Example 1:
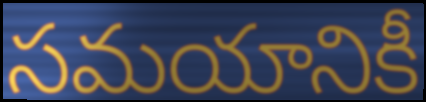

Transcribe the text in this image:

సమయానికీ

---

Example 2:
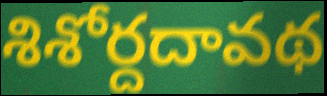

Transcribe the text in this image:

శిశోర్దదావథ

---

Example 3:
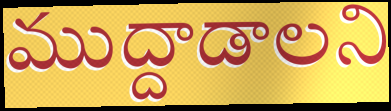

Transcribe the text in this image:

ముద్దాడాలని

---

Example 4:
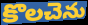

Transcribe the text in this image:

కొలచెను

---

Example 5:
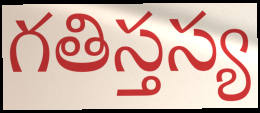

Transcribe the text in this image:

గతిస్తస్య